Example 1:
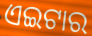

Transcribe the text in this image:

ଏଇଟାର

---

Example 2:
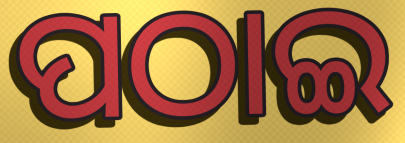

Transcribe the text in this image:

ପଠାଇ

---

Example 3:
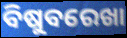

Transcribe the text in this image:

ବିଷୁବରେଖା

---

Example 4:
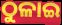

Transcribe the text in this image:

ଠୁଳାଇ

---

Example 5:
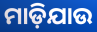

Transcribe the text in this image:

ମାଡ଼ିଯାଉ